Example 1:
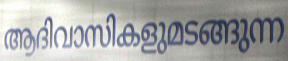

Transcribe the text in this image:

ആദിവാസികളുമടങ്ങുന്ന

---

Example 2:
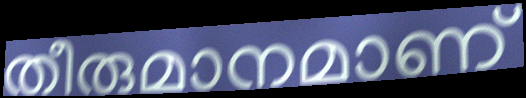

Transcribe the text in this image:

തീരുമാനമാണ്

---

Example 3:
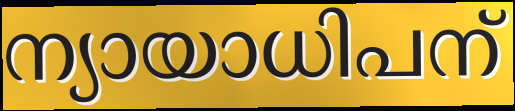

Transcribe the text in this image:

ന്യായാധിപന്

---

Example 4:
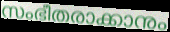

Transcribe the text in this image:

സംഭീതരാക്കാനും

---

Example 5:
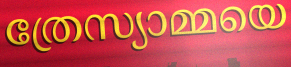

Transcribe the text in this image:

ത്രേസ്യാമ്മയെ